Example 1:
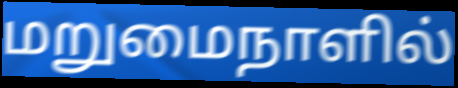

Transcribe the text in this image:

மறுமைநாளில்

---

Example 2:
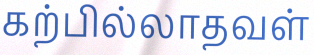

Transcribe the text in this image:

கற்பில்லாதவள்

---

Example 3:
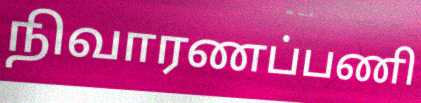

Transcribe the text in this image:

நிவாரணப்பணி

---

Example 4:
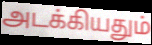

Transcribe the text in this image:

அடக்கியதும்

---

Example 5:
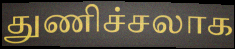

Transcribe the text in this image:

துணிச்சலாக